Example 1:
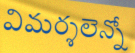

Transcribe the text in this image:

విమర్శలెన్నో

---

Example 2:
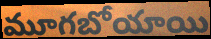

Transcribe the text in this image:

మూగబోయాయి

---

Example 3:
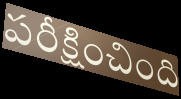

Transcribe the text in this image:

పరీక్షించింది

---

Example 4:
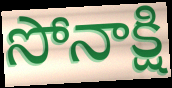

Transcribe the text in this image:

సోనాక్షి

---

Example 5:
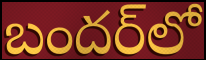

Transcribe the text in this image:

బందర్‌లో